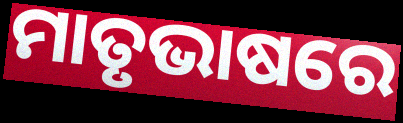
ମାତୃଭାଷରେ